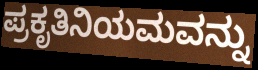
ಪ್ರಕೃತಿನಿಯಮವನ್ನು